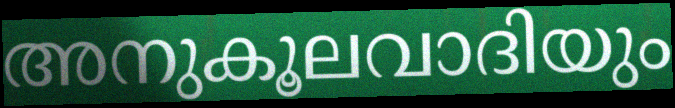
അനുകൂലവാദിയും